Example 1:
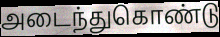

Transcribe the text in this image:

அடைந்துகொண்டு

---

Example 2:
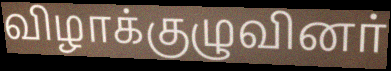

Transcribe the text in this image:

விழாக்குழுவினர்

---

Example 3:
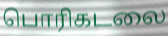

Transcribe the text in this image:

பொரிகடலை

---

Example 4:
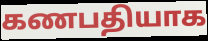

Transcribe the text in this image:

கணபதியாக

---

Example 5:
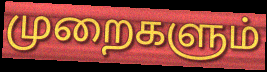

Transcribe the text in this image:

முறைகளும்